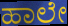
ಹಾಲೇ